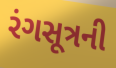
રંગસૂત્રની